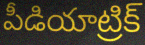
పీడియాట్రిక్